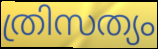
ത്രിസത്യം